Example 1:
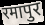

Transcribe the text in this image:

रमापुर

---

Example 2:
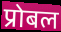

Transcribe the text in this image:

प्रोबल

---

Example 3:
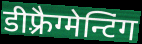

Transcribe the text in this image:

डीफ़्रैग्मेन्टिंग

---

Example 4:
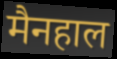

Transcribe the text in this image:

मैनहाल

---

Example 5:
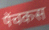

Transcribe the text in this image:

पेंचकस